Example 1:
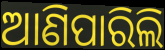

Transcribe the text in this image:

ଆଣିପାରିଲି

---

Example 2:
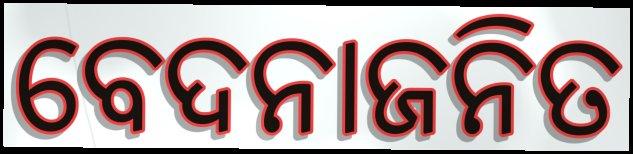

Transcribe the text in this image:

ବେଦନାଜନିତ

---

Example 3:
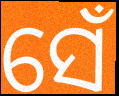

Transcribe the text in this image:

ସେଁ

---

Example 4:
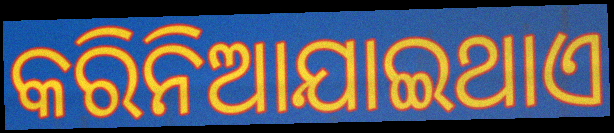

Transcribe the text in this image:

କରିନିଆଯାଇଥାଏ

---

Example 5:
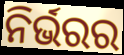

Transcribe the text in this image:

ନିର୍ଭରର